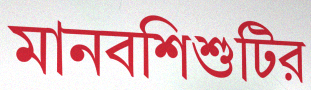
মানবশিশুটির